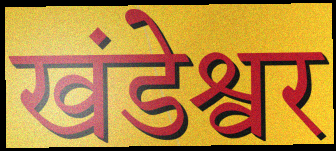
खंडेश्वर